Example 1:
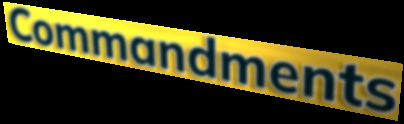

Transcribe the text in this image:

Commandments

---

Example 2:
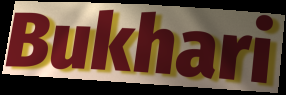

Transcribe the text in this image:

Bukhari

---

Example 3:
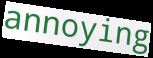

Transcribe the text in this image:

annoying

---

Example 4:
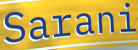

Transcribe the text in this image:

Sarani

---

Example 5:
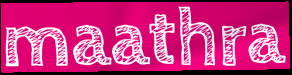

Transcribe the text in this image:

maathra